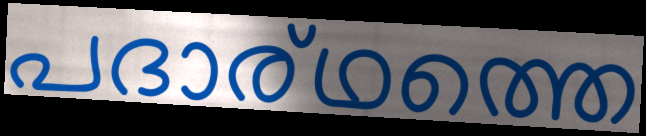
പദാര്ഥത്തെ